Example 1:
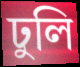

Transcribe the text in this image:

ঢুলি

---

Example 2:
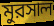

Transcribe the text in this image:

মুরসাল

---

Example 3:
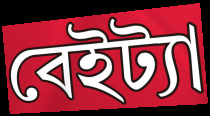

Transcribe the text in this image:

বেইট্যা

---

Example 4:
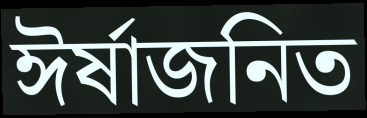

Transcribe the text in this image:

ঈর্ষাজনিত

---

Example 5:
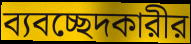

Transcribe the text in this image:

ব্যবচ্ছেদকারীর